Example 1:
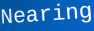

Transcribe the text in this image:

Nearing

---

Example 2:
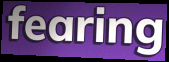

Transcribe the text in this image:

fearing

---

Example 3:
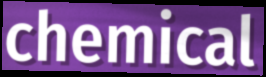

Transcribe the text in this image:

chemical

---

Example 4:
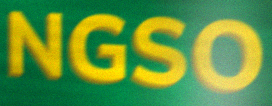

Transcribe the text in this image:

NGSO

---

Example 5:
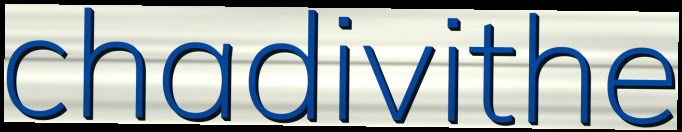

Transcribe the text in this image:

chadivithe